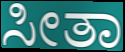
ಸೀತಾ